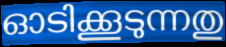
ഓടിക്കൂടുന്നതു